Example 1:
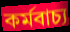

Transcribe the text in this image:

কৰ্মবাচ্য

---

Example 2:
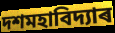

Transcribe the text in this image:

দশমহাবিদ্যাৰ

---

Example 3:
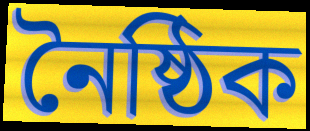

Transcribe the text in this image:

নৈষ্ঠিক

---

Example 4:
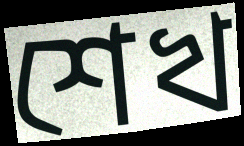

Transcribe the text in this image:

শেখ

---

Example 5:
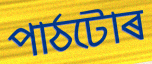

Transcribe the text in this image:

পাঠটোৰ